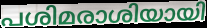
പശിമരാശിയായി